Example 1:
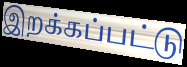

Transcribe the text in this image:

இறக்கப்பட்டு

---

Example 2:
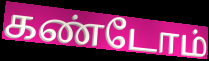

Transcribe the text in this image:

கண்டோம்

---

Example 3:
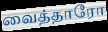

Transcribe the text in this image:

வைத்தாரோ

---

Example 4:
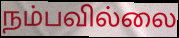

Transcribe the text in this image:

நம்பவில்லை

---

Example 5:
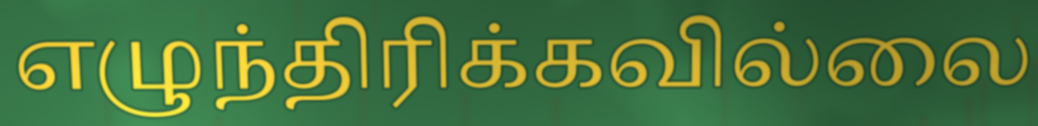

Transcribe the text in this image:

எழுந்திரிக்கவில்லை